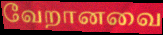
வேறானவை